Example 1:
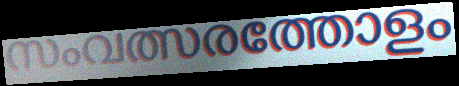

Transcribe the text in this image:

സംവത്സരത്തോളം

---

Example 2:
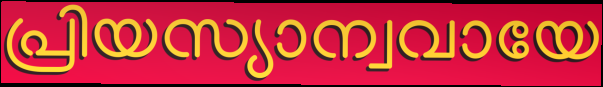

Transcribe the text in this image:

പ്രിയസ്യാന്വവായേ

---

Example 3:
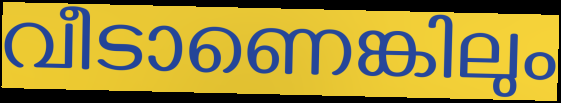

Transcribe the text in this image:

വീടാണെങ്കിലും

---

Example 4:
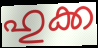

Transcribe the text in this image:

ഹുക്ക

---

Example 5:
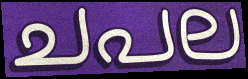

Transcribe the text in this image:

ചപല